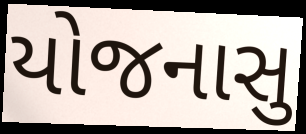
યોજનાસુ